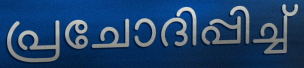
പ്രചോദിപ്പിച്ച്